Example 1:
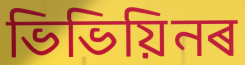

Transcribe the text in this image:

ভিভিয়িনৰ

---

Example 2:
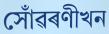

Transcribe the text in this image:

সোঁৱৰণীখন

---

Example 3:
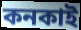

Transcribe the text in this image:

কনকাই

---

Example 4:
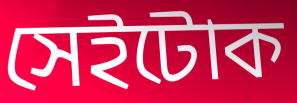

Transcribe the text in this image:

সেইটোক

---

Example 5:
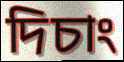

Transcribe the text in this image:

দিচাং